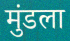
मुंडला